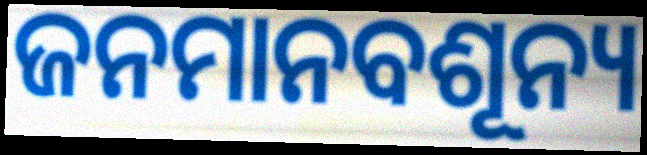
ଜନମାନବଶୂନ୍ୟ